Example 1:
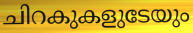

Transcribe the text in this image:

ചിറകുകളുടേയും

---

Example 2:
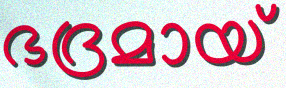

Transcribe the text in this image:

ഭദ്രമായ്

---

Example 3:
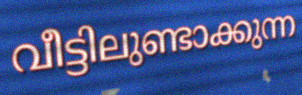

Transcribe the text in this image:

വീട്ടിലുണ്ടാക്കുന്ന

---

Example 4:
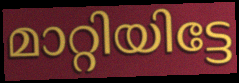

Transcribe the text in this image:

മാറ്റിയിട്ടേ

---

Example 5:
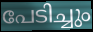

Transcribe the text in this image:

പേടിച്ചും